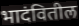
भादंवितील